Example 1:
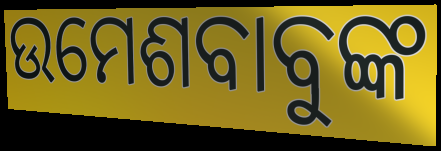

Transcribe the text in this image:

ଉମେଶବାବୁଙ୍କ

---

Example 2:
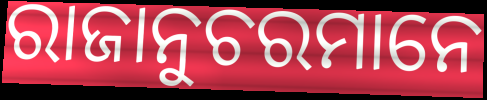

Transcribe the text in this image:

ରାଜାନୁଚରମାନେ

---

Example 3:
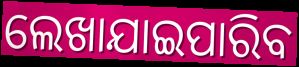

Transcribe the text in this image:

ଲେଖାଯାଇପାରିବ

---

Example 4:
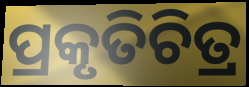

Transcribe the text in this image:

ପ୍ରକୃତିଚିତ୍ର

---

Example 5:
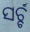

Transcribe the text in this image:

ସର୍ଚ୍ଚ